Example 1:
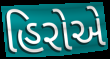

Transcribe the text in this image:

હિરોએ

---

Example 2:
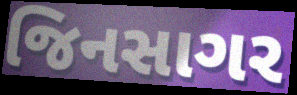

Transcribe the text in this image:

જિનસાગર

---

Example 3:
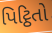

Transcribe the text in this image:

પિટ્ઠિતો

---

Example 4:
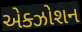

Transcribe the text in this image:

એક્ઝોશન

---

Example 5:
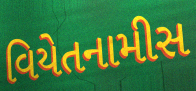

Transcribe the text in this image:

વિયેતનામીસ